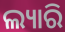
ଲ୍ୟାରି